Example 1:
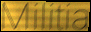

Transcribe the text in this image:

Militia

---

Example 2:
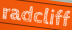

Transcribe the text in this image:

radcliff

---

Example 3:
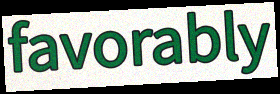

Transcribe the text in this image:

favorably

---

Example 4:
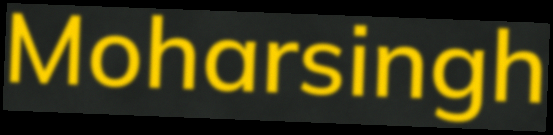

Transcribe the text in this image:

Moharsingh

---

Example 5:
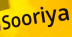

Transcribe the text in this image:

Sooriya